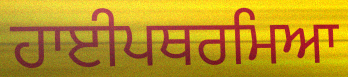
ਹਾਈਪਥਰਮਿਆ